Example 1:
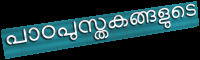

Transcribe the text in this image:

പാഠപുസ്തകങ്ങളുടെ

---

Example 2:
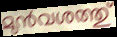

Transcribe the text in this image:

മുൻവശത്തു്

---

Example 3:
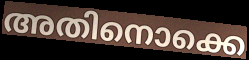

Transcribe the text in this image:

അതിനൊക്കെ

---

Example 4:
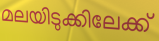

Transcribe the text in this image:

മലയിടുക്കിലേക്ക്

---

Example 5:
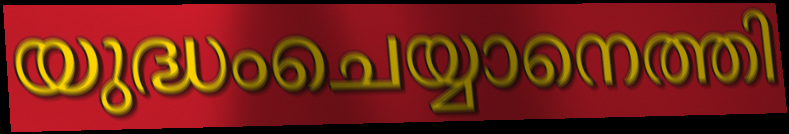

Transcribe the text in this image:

യുദ്ധംചെയ്യാനെത്തി